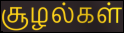
சூழல்கள்